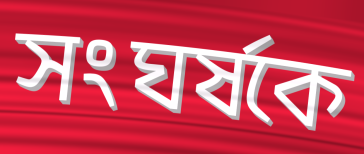
সংঘর্ষকে